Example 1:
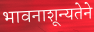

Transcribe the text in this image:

भावनाशून्यतेने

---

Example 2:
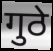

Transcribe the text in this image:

गुठे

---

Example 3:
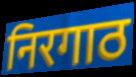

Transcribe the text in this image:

निरगाठ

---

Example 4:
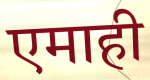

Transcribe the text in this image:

एमाही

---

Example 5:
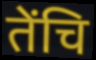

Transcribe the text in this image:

तेंचि